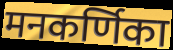
मनकर्णिका